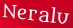
Neralu